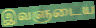
இவளுடைய